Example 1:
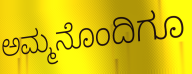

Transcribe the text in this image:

ಅಮ್ಮನೊಂದಿಗೂ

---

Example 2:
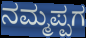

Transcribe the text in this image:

ನಮ್ಮಪ್ಪಗ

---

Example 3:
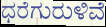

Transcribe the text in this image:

ಧರೆಗುರುಳಿವೆ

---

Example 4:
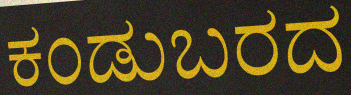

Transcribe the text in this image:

ಕಂಡುಬರದ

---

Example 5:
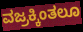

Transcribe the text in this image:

ವಜ್ರಕ್ಕಿಂತಲೂ